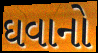
ઘવાનો